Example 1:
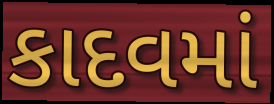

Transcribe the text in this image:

કાદવમાં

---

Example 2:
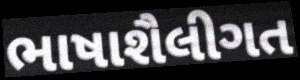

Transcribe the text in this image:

ભાષાશૈલીગત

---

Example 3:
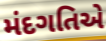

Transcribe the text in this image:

મંદગતિએ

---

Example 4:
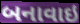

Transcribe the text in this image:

બનાવાઇ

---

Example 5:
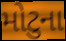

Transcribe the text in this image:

મોટુના